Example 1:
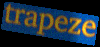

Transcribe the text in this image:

trapeze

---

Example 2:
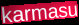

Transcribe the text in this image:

karmasu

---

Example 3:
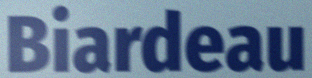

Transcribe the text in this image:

Biardeau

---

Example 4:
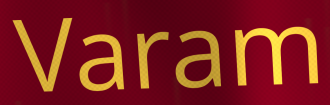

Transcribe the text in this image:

Varam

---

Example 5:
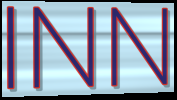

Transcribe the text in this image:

INN